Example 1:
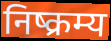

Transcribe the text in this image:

निष्क्रम्य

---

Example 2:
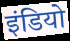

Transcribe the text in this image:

इंडियो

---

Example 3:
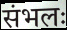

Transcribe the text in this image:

संभलः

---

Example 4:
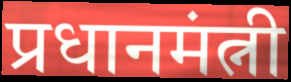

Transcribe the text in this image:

प्रधानमंत्नी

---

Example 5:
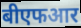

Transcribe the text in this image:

बीएफआर